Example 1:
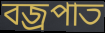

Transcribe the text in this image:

বজ্রপাত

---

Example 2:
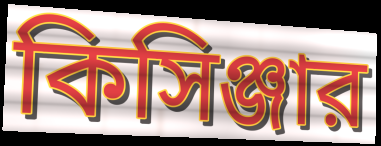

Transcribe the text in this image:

কিসিঞ্জার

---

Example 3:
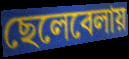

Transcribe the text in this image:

ছেলেবেলায়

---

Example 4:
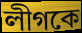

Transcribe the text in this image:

লীগকে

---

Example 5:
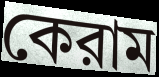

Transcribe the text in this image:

কেরাম